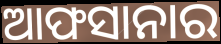
ଆଫସାନାର